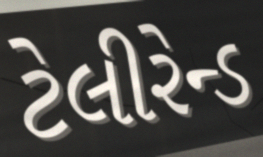
ટેલીરેન્ડ